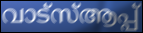
വാട്സ്ആപ്പ്